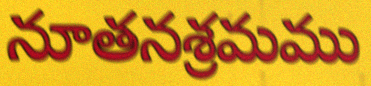
నూతనశ్రమము